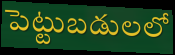
పెట్టుబడులలో